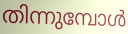
തിന്നുമ്പോൾ